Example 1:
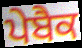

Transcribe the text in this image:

ਪੇਬੈਕ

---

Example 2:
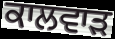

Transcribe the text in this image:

ਕਾਲਵਾੜ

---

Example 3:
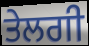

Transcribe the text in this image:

ਤੇਲਗੀ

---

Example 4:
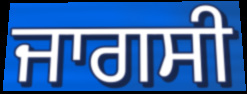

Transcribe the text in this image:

ਜਾਗਸੀ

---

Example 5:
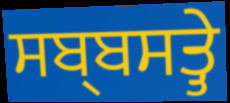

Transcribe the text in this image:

ਸਬ੍ਬਸਤ੍ਤੇ